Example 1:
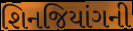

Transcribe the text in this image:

શિનજિયાંગની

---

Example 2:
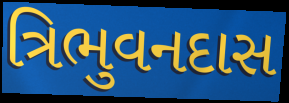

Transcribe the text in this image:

ત્રિભુવનદાસ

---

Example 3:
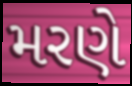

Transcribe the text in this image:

મરણે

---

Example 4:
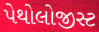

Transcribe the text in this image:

પેથોલોજીસ્ટ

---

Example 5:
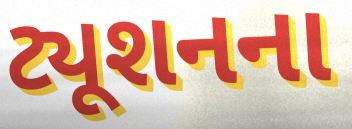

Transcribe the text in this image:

ટ્યૂશનના